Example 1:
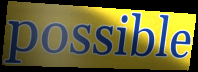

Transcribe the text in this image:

possible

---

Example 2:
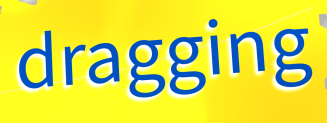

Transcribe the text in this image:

dragging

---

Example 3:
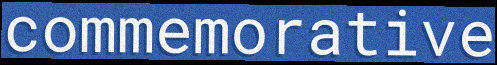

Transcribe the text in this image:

commemorative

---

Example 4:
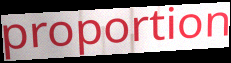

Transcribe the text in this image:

proportion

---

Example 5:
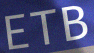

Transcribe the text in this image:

ETB